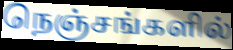
நெஞ்சங்களில்